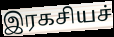
இரகசியச்